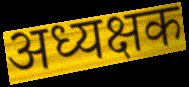
अध्यक्षक